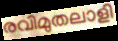
രവിമുതലാളി